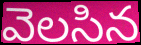
వెలసిన